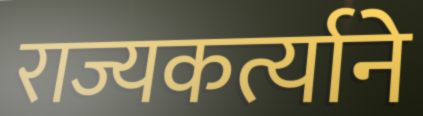
राज्यकर्त्याने